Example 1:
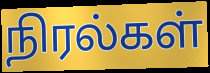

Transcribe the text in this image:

நிரல்கள்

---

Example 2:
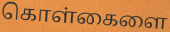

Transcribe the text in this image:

கொள்கைளை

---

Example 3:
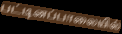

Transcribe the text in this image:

பட்டினப்பாலையில்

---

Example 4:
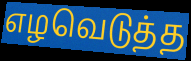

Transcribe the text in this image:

எழவெடுத்த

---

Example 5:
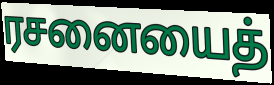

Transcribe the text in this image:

ரசனையைத்